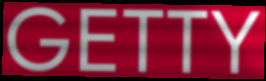
GETTY